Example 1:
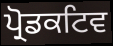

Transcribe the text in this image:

ਪ੍ਰੋਡਕਟਿਵ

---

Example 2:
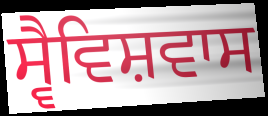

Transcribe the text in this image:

ਸ੍ਵੈਵਿਸ਼ਵਾਸ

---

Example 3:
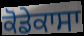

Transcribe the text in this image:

ਕੋਡੇਕਾਸਾ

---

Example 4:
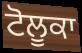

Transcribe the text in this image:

ਟੋਲੂਕਾ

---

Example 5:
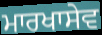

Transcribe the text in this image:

ਮਾਰਖਾਸੇਵ